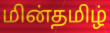
மின்தமிழ்